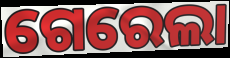
ଗେରେଲା